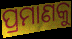
ପ୍ରମାଣକୁ